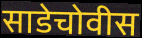
साडेचोवीस